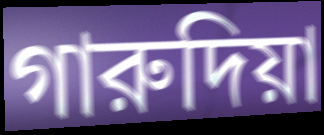
গারুদিয়া